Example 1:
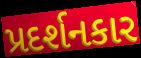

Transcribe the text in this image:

પ્રદર્શનકાર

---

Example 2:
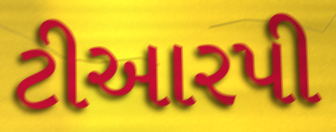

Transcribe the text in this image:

ટીઆરપી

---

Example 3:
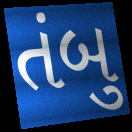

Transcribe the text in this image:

તંબુ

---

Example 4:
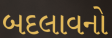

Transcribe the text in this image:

બદલાવનો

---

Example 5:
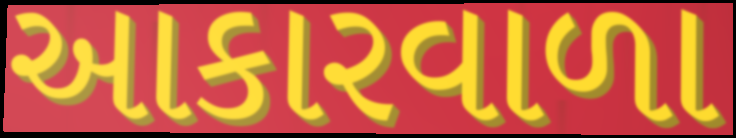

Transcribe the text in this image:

આકારવાળા